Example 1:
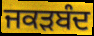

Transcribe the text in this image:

ਜਕੜਬੰਦ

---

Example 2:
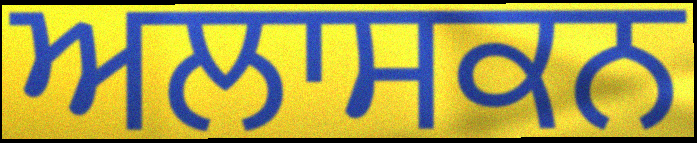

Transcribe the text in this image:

ਅਲਾਸਕਨ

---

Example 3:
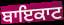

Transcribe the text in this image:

ਬਾਇਕਾਟ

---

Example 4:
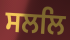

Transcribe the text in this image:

ਸਲਲਿ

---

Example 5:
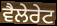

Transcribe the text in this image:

ਵੈਲੇਰੇਟ